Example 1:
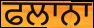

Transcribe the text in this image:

ਫਲਾਨਾ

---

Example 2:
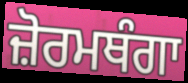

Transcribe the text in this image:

ਜ਼ੋਰਮਥੰਗਾ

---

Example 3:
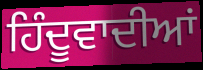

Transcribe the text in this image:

ਹਿੰਦੂਵਾਦੀਆਂ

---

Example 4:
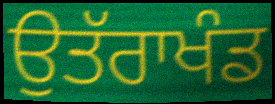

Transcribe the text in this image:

ਉਤੱਰਾਖੰਡ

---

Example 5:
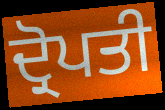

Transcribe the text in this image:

ਦ੍ਰੋਪਤੀ